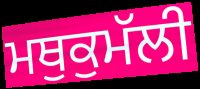
ਮਥੁਕੁਮੱਲੀ